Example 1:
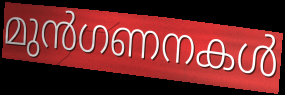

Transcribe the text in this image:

മുൻഗണനകൾ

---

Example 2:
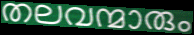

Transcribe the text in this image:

തലവന്മാരും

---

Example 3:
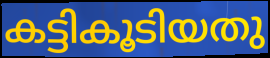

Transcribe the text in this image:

കട്ടികൂടിയതു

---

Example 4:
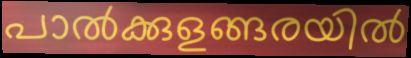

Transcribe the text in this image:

പാൽക്കുളങ്ങരയിൽ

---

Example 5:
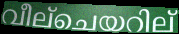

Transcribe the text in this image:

വീല്ചെയറില്